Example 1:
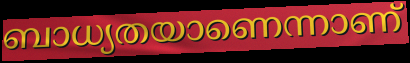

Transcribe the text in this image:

ബാധ്യതയാണെന്നാണ്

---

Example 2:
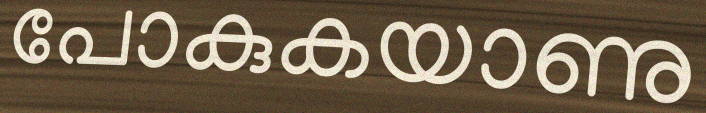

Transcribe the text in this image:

പോകുകയാണു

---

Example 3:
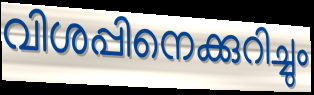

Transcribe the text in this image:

വിശപ്പിനെക്കുറിച്ചും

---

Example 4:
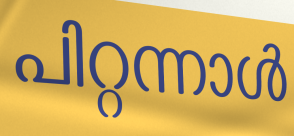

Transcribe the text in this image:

പിറ്റന്നാൾ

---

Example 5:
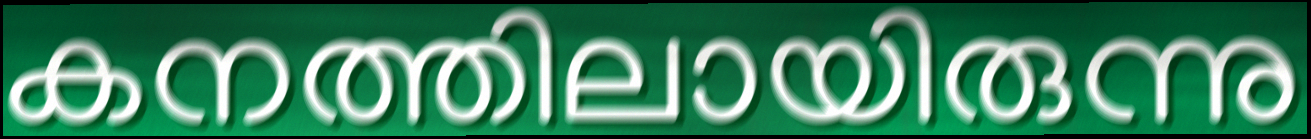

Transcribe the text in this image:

കനത്തിലായിരുന്നു